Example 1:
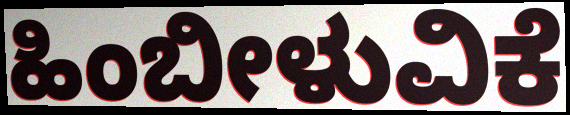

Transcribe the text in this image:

ಹಿಂಬೀಳುವಿಕೆ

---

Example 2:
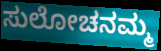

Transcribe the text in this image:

ಸುಲೋಚನಮ್ಮ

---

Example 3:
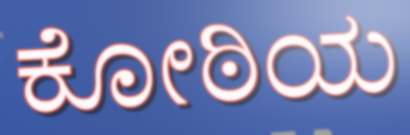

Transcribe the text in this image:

ಕೋಠಿಯ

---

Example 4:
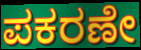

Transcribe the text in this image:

ಪಕರಣೇ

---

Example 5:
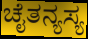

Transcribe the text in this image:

ಚೈತನ್ಯಸ್ಯ